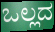
ಒಲ್ಲದ